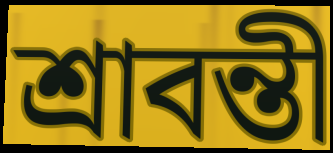
শ্রাবন্তী